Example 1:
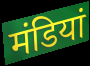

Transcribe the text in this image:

मंडियां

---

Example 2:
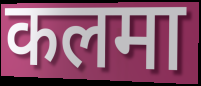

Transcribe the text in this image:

कलमा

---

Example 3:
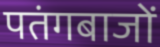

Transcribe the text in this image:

पतंगबाजों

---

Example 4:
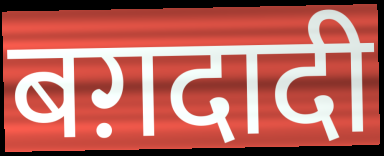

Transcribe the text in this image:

बग़दादी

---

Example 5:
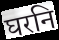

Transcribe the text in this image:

घरनि